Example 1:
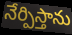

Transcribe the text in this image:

నేర్పిస్తాను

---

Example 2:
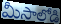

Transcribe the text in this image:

మీసాలోడి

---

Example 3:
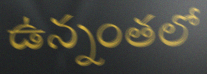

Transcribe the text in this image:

ఉన్నంతలో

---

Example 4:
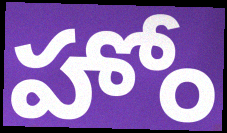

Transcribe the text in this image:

హోం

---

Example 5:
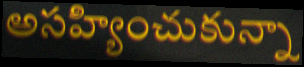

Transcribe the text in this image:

అసహ్యించుకున్నా